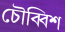
চৌব্বিশ